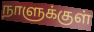
நாளுக்குள்